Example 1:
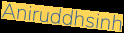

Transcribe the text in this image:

Aniruddhsinh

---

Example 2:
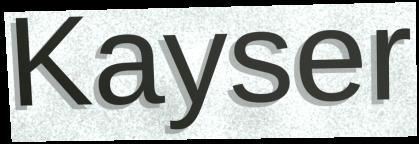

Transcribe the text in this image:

Kayser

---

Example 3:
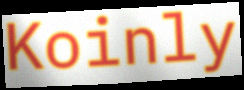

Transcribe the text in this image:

Koinly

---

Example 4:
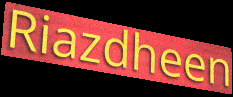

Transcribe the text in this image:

Riazdheen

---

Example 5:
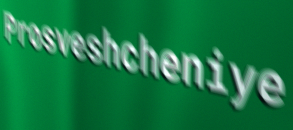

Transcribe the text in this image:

Prosveshcheniye